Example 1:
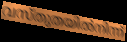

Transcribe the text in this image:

വസ്തുതയിൽനിന്ന്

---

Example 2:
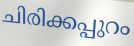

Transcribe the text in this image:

ചിരിക്കപ്പുറം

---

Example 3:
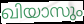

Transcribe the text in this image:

ഖിയാസും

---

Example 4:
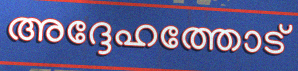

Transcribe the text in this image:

അദ്ദേഹത്തോട്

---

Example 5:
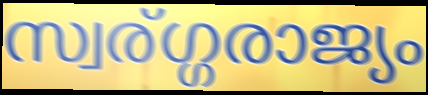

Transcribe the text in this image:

സ്വര്ഗ്ഗരാജ്യം